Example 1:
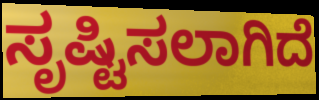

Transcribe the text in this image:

ಸೃಷ್ಟಿಸಲಾಗಿದೆ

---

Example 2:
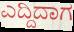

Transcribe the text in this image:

ಎದ್ದಿದಾಗ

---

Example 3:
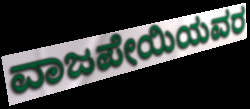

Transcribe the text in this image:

ವಾಜಪೇಯಿಯವರ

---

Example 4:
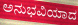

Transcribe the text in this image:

ಅನುಭವಿಯಾದ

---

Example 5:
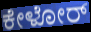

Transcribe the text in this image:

ಕೇಳೋರ್